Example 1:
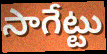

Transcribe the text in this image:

సాగేట్టు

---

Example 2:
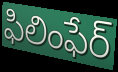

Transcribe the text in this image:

ఫిలింఫేర్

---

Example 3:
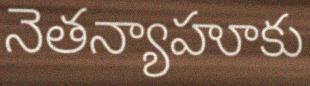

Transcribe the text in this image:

నెతన్యాహూకు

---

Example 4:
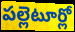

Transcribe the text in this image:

పల్లెటూర్లో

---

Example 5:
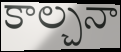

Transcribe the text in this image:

కాల్చనా